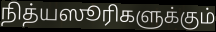
நித்யஸூரிகளுக்கும்